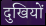
दुखियों